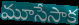
మూసేసాక